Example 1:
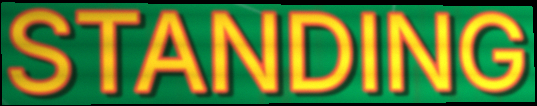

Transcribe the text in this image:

STANDING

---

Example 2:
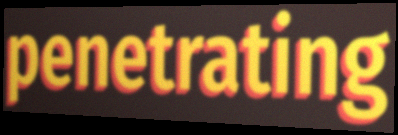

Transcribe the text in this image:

penetrating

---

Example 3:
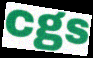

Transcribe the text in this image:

cgs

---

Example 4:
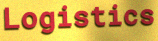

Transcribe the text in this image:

Logistics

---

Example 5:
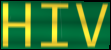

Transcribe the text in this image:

HIV